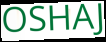
OSHAJ